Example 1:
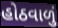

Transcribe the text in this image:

હોઠવાળું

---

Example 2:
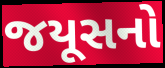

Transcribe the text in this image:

જયૂસનો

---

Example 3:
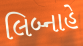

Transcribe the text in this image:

લિબ્નાહે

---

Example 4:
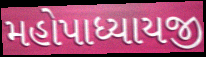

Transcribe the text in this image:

મહોપાધ્યાયજી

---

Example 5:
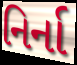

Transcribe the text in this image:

નિર્ના